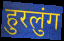
हुरलुंग